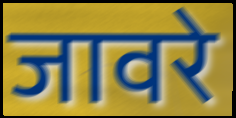
जावरे